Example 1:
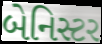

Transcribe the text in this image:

બેનિસ્ટર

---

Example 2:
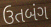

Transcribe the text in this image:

ઉતબંગ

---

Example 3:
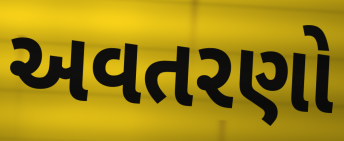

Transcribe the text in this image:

અવતરણો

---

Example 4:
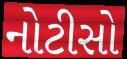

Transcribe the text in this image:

નોટીસો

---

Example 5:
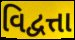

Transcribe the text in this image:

વિદ્વત્તા